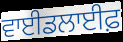
ਵਾਈਡਲਾਈਫ਼